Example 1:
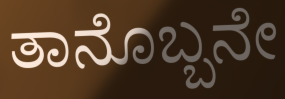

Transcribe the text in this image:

ತಾನೊಬ್ಬನೇ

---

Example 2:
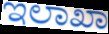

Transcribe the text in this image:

ಇಲಾಖಾ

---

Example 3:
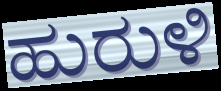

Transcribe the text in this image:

ಹುರುಳಿ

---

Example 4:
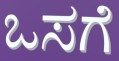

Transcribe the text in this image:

ಒಸಗೆ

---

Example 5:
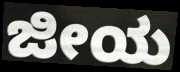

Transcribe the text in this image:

ಜೀಯ